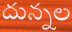
దున్నల